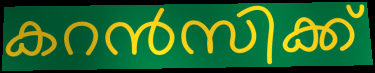
കറൻസിക്ക്